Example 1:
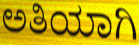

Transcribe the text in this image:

ಅತಿಯಾಗಿ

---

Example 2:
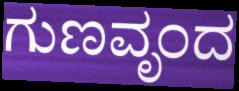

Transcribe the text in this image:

ಗುಣವೃಂದ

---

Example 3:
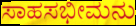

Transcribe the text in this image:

ಸಾಹಸಭೀಮನು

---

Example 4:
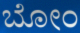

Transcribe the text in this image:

ಬೋಂ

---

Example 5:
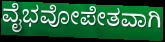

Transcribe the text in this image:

ವೈಭವೋಪೇತವಾಗಿ